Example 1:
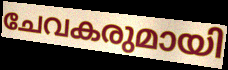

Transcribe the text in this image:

ചേവകരുമായി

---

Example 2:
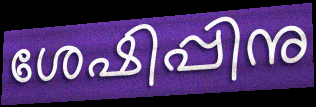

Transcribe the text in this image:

ശേഷിപ്പിനു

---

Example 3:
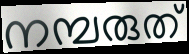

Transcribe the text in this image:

നമ്പരുത്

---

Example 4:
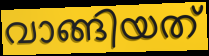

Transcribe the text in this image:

വാങ്ങിയത്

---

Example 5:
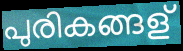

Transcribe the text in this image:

പുരികങ്ങള്